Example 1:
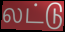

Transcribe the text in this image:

லட்டு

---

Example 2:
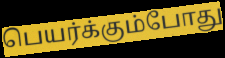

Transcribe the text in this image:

பெயர்க்கும்போது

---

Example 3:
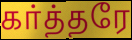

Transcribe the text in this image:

கர்த்தரே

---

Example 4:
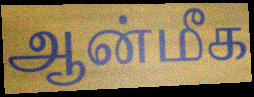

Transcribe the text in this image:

ஆன்மீக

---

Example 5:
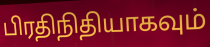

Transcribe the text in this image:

பிரதிநிதியாகவும்